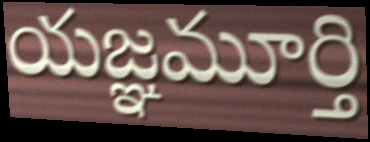
యజ్ఞమూర్తి